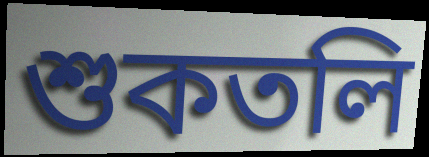
শুকতলি